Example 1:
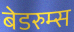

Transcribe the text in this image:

बेडरुम्स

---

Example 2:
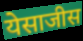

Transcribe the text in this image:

येसाजीस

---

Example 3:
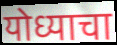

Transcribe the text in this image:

योध्याचा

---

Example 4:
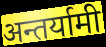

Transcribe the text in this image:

अन्तर्यामी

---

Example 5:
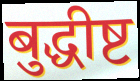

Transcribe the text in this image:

बुद्धीष्ट